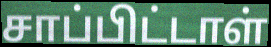
சாப்பிட்டாள்